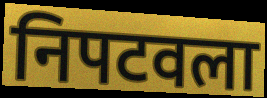
निपटवला